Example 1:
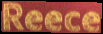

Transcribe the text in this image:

Reece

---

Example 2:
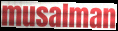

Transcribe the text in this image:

musalman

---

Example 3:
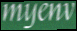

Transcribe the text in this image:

myenv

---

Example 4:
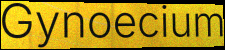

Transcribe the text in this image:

Gynoecium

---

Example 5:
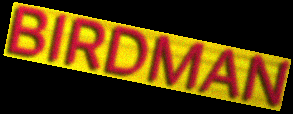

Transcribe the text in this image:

BIRDMAN